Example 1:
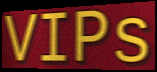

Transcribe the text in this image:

VIPs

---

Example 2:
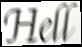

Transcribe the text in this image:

Hell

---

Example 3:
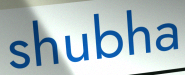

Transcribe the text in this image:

shubha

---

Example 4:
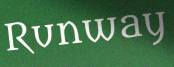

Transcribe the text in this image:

Runway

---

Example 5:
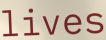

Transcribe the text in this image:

lives